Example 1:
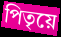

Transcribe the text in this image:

পিতৃয়ে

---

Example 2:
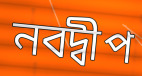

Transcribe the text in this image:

নবদ্বীপ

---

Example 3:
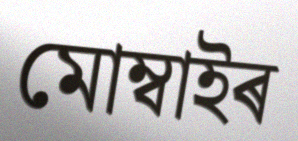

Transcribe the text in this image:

মোম্বাইৰ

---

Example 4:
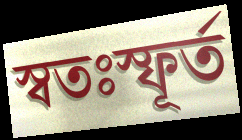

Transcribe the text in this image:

স্বতঃস্ফূৰ্ত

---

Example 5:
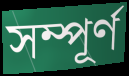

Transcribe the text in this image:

সম্পূৰ্ণ